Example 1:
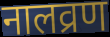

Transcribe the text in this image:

नालव्रण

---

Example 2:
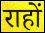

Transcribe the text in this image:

राहों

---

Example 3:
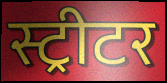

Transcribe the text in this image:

स्ट्रीटर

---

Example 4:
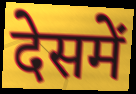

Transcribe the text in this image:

देसमें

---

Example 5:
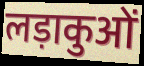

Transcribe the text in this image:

लड़ाकुओं